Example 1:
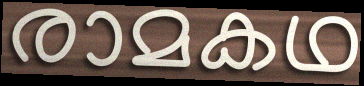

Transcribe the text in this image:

രാമകഥ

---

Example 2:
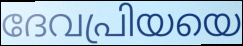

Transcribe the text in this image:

ദേവപ്രിയയെ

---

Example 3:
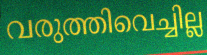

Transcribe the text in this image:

വരുത്തിവെച്ചില്ല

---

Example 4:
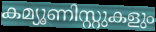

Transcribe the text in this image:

കമ്യൂണിസ്റ്റുകളും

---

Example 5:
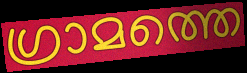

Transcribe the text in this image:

ഗ്രാമത്തെ